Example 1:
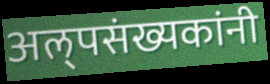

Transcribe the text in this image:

अल्पसंख्यकांनी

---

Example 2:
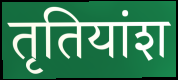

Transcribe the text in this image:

तृतियांश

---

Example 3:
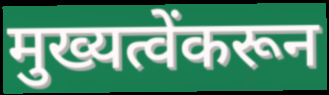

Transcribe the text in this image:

मुख्यत्वेंकरून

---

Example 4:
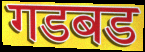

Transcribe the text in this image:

गडबड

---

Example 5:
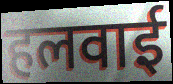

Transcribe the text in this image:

हलवाई